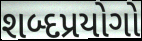
શબ્દપ્રયોગો